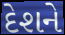
દેશને